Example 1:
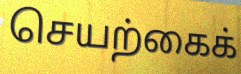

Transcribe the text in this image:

செயற்கைக்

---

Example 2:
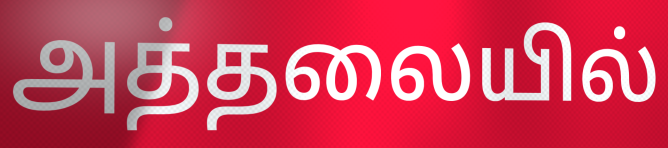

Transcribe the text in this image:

அத்தலையில்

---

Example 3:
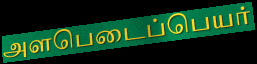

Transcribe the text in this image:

அளபெடைப்பெயர்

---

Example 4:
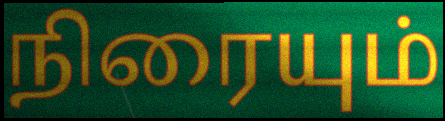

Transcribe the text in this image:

நிரையும்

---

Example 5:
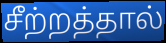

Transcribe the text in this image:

சீற்றத்தால்